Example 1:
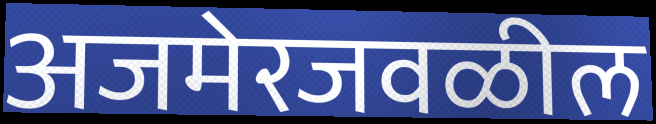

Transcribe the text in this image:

अजमेरजवळील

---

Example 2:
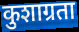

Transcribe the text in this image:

कुशाग्रता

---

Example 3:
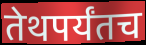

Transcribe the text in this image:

तेथपर्यंतच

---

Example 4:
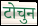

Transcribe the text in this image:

टोचुन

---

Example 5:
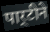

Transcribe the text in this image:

पार्टीने